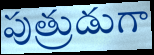
పుత్రుడుగా